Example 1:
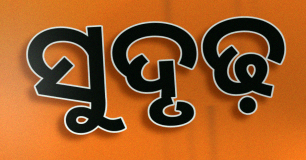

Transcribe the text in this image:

ସୁଦୃଢ଼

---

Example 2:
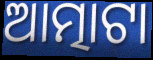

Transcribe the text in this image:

ଆତ୍ମାଟା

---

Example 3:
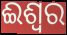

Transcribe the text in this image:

ଈଶ୍ୱର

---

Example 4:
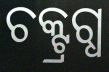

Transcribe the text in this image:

ଚକ୍ଟ୍ରଗ୍ଧ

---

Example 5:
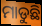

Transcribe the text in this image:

ମାଡୁଛି